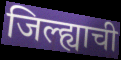
जिल्ह्याची